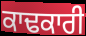
ਕਾਢਕਾਰੀ